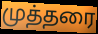
முத்தரை